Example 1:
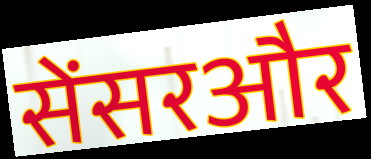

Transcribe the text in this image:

सेंसरऔर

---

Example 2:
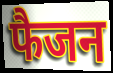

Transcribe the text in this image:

फैजन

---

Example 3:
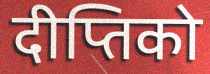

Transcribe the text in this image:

दीप्तिको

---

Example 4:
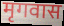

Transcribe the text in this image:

मृगवास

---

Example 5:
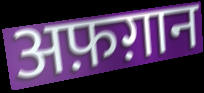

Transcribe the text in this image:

अफ़ग़ान